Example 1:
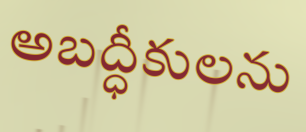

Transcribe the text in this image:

అబద్ధీకులను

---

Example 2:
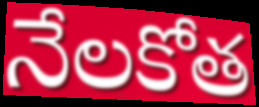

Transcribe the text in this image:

నేలకోత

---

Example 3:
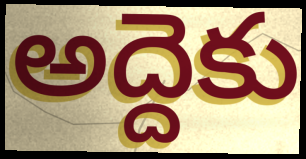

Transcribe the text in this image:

అద్దెకు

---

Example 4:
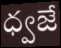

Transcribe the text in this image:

ధ్వజే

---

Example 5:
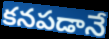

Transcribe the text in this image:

కనపడానే